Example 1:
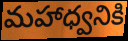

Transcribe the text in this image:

మహాధ్వనికి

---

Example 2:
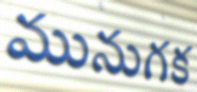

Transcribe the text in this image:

మునుగక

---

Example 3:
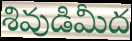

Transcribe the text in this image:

శివుడిమీద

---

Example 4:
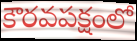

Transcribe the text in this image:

కౌరవపక్షంలో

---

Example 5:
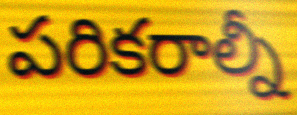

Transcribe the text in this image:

పరికరాల్నీ